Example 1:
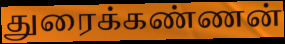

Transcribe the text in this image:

துரைக்கண்ணன்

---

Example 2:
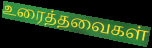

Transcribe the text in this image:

உரைத்தவைகள்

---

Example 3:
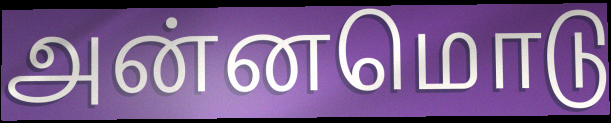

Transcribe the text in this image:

அன்னமொடு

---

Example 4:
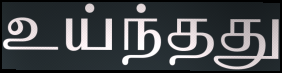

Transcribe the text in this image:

உய்ந்தது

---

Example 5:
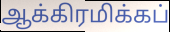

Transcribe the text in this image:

ஆக்கிரமிக்கப்